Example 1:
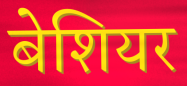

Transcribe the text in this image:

बेशियर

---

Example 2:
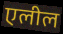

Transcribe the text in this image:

एलील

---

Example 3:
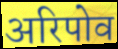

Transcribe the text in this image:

अरिपोव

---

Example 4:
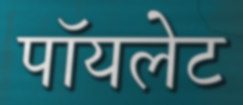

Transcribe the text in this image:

पॉयलेट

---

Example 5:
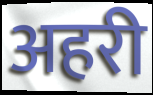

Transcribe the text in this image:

अहरी